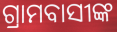
ଗ୍ରାମବାସୀଙ୍କ